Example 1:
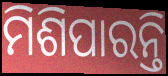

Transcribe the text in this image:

ମିଶିପାରନ୍ତି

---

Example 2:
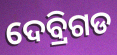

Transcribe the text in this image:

ଦେବ୍ରିଗଡ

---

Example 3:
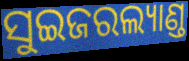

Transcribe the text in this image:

ସୁଇଜରଲ୍ୟାଣ୍ଡ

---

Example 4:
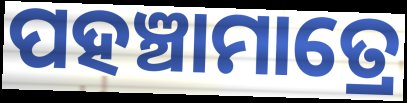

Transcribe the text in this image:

ପହଞ୍ଚାମାତ୍ରେ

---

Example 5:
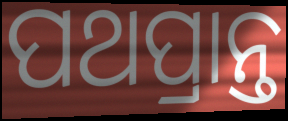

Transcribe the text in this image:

ପଥପ୍ରାନ୍ତ